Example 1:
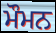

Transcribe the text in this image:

ਮੌਮਨ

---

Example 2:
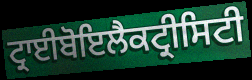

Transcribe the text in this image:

ਟ੍ਰਾਈਬੋਇਲੈਕਟ੍ਰੀਸਿਟੀ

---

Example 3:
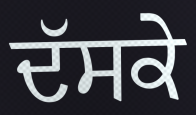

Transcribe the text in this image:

ਦੱਸਕੇ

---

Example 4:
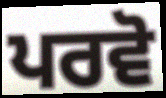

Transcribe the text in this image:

ਪਰਵੋ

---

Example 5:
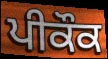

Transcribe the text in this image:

ਪੀਕੌਕ